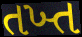
તખ્ત